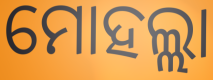
ମୋହଲ୍ଲା